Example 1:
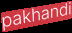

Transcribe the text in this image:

pakhandi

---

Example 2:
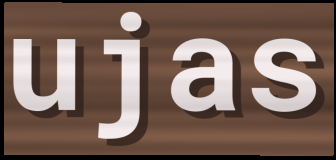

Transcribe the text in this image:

ujas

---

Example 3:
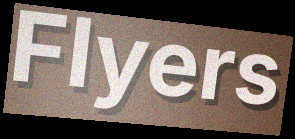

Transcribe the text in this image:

Flyers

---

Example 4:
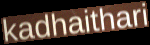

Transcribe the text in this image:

kadhaithari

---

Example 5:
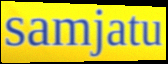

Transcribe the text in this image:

samjatu